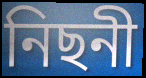
নিছনী